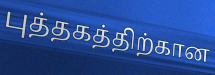
புத்தகத்திற்கான